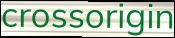
crossorigin